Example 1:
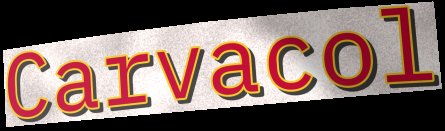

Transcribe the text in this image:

Carvacol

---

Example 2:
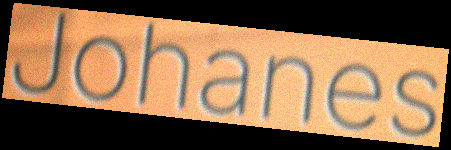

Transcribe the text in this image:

Johanes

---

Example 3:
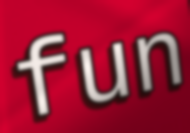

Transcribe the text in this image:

fun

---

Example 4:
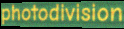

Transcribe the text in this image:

photodivision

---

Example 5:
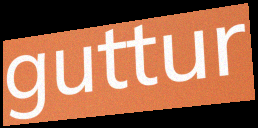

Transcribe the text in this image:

guttur